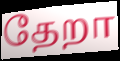
தேறா